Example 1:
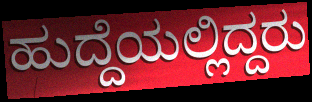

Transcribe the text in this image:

ಹುದ್ದೆಯಲ್ಲಿದ್ದರು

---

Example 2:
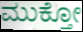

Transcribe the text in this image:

ಮುಕ್ತೋ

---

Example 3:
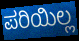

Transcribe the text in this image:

ಪರಿಯಿಲ್ಲ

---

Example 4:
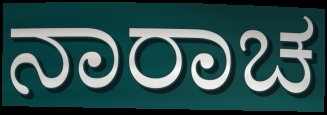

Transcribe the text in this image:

ನಾರಾಚ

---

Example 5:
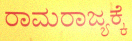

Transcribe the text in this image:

ರಾಮರಾಜ್ಯಕ್ಕೆ